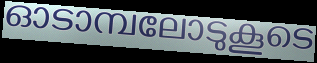
ഓടാമ്പലോടുകൂടെ